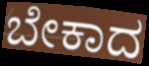
ಬೇಕಾದ